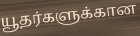
யூதர்களுக்கான